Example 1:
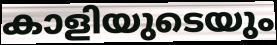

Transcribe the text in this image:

കാളിയുടെയും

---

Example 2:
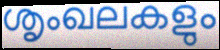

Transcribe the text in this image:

ശൃംഖലകളും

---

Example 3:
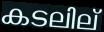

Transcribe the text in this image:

കടലില്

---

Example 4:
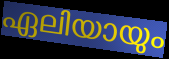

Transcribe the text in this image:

ഏലിയായും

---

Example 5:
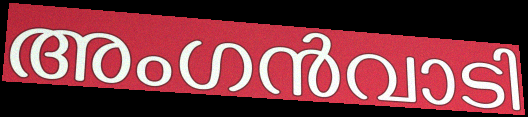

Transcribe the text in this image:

അംഗൻവാടി